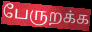
பேருறக்க